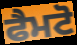
ਫੈਮਟੋ